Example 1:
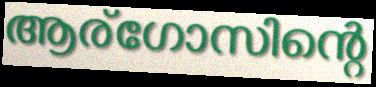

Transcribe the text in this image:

ആര്ഗോസിന്റെ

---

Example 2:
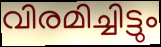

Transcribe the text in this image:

വിരമിച്ചിട്ടും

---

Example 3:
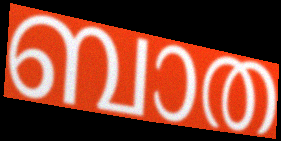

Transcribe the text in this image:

ബാത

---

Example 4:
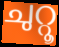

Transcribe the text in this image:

ചുറ്റൂ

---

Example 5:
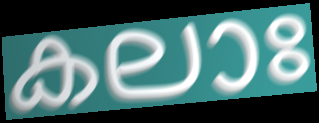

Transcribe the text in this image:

കലാഃ